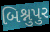
બિશ્નુપુર